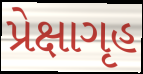
પ્રેક્ષાગૃહ